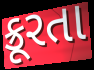
ક્રૂરતા